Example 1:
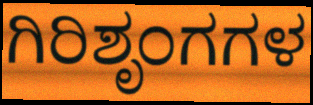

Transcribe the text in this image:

ಗಿರಿಶೃಂಗಗಳ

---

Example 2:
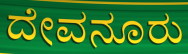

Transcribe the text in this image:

ದೇವನೂರು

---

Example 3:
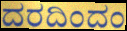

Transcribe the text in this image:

ದರದಿಂದಂ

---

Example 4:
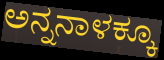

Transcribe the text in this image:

ಅನ್ನನಾಳಕ್ಕೂ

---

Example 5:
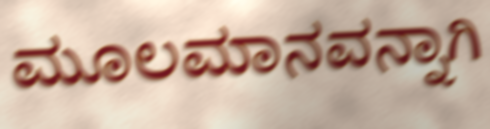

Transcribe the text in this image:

ಮೂಲಮಾನವನ್ನಾಗಿ